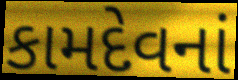
કામદેવનાં